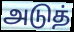
அடுத்